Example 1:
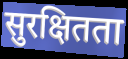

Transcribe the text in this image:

सुरक्षितता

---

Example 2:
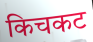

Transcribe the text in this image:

किचकट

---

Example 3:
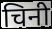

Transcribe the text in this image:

चिनी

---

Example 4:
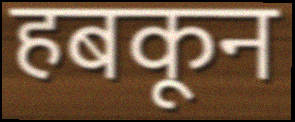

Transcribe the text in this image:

हबकून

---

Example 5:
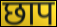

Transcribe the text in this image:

छाप